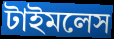
টাইমলেস